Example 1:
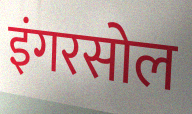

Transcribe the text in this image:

इंगरसोल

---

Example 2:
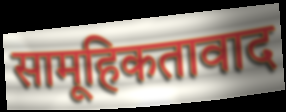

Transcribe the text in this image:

सामूहिकतावाद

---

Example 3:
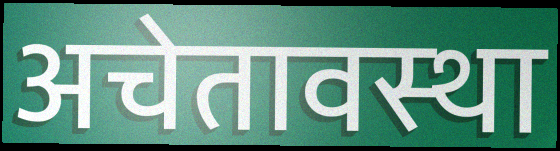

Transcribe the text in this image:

अचेतावस्था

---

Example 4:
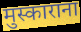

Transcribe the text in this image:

मुस्काराना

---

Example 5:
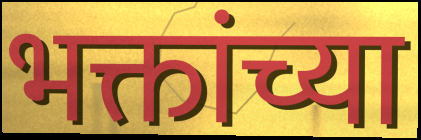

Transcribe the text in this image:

भक्तांच्या